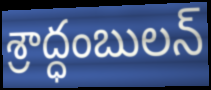
శ్రాద్ధంబులన్